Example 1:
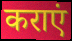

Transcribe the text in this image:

कराएं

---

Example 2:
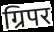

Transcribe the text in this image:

ग्रिपर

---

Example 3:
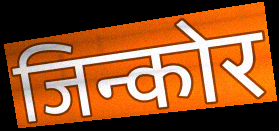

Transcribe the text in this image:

जिन्कोर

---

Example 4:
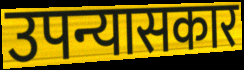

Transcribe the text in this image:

उपन्यासकार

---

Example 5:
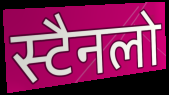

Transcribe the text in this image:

स्टैनलो